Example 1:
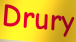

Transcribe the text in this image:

Drury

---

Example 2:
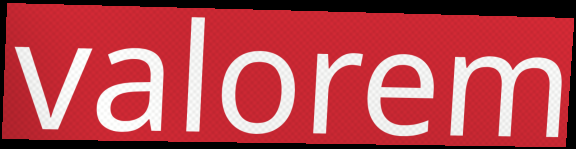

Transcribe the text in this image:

valorem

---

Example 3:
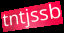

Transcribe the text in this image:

tntjssb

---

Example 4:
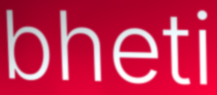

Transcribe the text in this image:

bheti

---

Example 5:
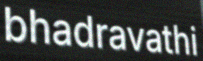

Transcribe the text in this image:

bhadravathi